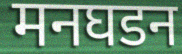
मनघडन